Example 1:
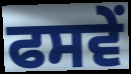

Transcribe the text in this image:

ਫਸਵੇਂ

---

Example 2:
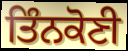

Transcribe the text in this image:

ਤਿੰਨਕੋਣੀ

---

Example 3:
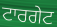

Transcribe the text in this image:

ਟਾਰਗੇਟ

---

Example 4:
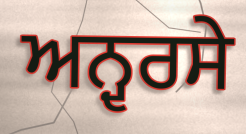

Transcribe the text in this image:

ਅਨ੍ਦਰਸੇ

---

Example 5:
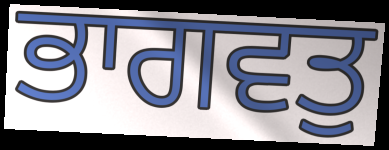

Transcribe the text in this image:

ਭਾਗਵਤੁ